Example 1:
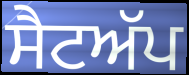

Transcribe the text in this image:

ਸੈਟਅੱਪ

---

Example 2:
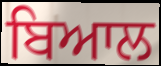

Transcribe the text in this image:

ਬਿਆਲ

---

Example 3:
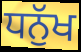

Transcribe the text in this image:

ਧਨੁੱਖ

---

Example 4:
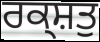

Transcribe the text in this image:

ਰਕ੍ਸ਼ਤੁ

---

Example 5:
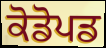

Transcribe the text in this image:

ਕੋਡੋਪਡ